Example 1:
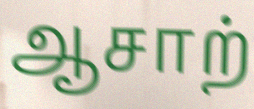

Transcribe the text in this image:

ஆசாற்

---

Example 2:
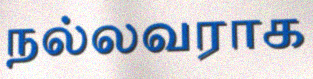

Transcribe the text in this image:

நல்லவராக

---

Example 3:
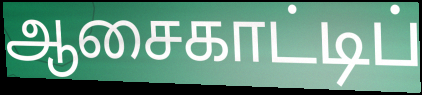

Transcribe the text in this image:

ஆசைகாட்டிப்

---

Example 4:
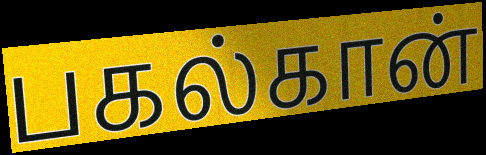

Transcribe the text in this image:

பகல்கான்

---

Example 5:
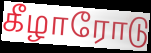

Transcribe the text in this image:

கீழாரோடு